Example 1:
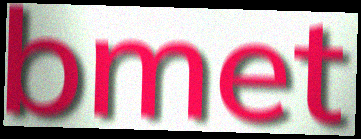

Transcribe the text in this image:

bmet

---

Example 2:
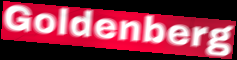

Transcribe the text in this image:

Goldenberg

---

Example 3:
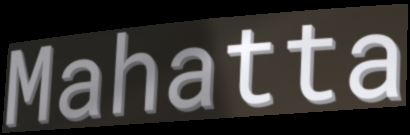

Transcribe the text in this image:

Mahatta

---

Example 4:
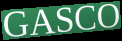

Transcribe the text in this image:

GASCO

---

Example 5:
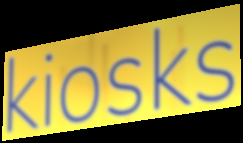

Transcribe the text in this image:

kiosks